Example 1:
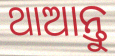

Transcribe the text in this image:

ଥାଆନ୍ତୁ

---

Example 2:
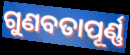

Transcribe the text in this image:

ଗୁଣବତାପୂର୍ଣ୍ଣ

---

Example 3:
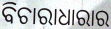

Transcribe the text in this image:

ବିଚାରାଧାରାର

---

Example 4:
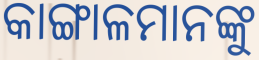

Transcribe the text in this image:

କାଙ୍ଗାଳମାନଙ୍କୁ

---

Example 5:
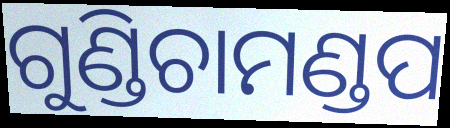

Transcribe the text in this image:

ଗୁଣ୍ଡିଚାମଣ୍ଡପ